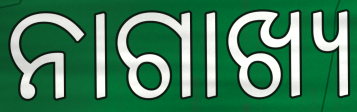
ନାଗାଖ୍ୟ